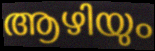
ആഴിയും